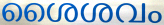
ശൈശവം